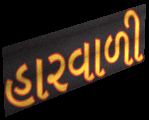
હારવાળી